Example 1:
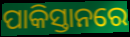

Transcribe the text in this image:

ପାକିସ୍ତାନରେ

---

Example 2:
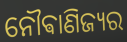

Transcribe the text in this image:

ନୌଵାଣିଜ୍ୟର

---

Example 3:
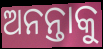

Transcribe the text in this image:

ଅନନ୍ତାକୁ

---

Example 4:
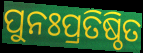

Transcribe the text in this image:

ପୁନଃପ୍ରତିଷ୍ଠିତ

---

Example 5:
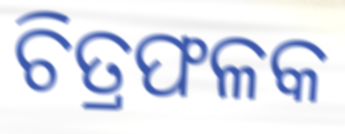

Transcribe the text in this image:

ଚିତ୍ରଫଳକ